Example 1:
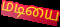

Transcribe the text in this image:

மடியை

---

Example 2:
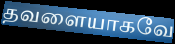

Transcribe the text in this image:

தவளையாகவே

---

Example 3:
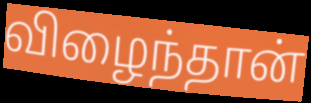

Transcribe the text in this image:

விழைந்தான்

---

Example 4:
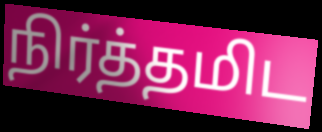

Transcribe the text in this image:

நிர்த்தமிட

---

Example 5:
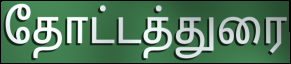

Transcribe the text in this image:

தோட்டத்துரை